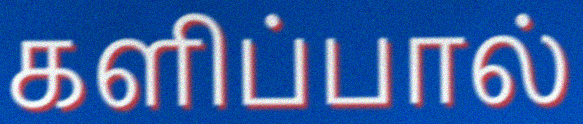
களிப்பால்